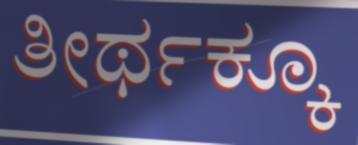
ತೀರ್ಥಕ್ಕೂ